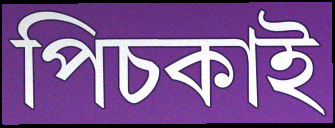
পিচকাই